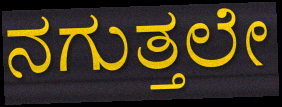
ನಗುತ್ತಲೇ